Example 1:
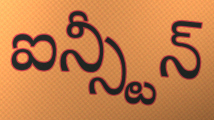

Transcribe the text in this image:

ఐన్స్టీన్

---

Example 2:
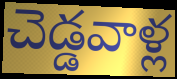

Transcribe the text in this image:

చెడ్డవాళ్ల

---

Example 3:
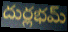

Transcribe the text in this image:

దుర్లభమ్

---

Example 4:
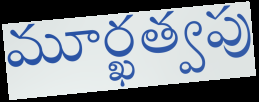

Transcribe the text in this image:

మూర్ఖత్వపు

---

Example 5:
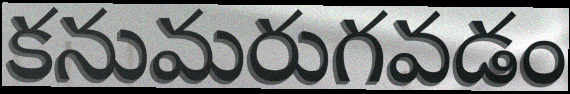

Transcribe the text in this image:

కనుమరుగవడం